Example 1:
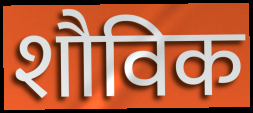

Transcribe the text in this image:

शौविक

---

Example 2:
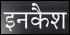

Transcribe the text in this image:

इनकैश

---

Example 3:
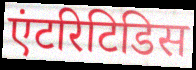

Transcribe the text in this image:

एंटरिटिडिस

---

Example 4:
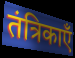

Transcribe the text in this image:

तंत्रिकाएँ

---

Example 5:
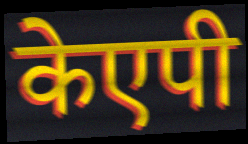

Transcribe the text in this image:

केएपी